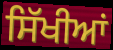
ਸਿੱਖੀਆਂ